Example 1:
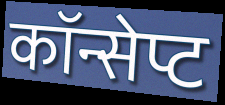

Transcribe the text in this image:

कॉन्‍सेप्‍ट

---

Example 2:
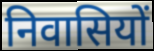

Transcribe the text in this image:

निवासियों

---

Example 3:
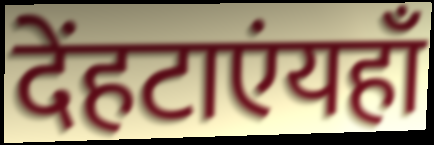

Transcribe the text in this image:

देंहटाएंयहाँ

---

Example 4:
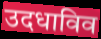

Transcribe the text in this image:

उदधाविव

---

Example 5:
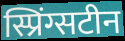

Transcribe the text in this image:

स्प्रिंग्सटीन